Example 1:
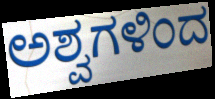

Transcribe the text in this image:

ಅಶ್ವಗಳಿಂದ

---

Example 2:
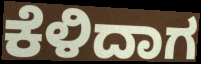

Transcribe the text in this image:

ಕೆಳಿದಾಗ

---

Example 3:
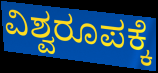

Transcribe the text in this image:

ವಿಶ್ವರೂಪಕ್ಕೆ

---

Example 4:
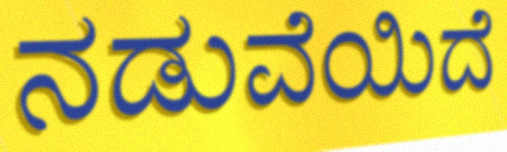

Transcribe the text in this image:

ನಡುವೆಯಿದೆ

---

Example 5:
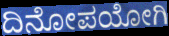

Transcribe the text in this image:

ದಿನೋಪಯೋಗಿ